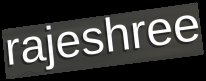
rajeshree